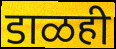
डाळही